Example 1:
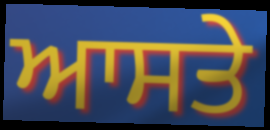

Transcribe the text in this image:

ਆਸਤੇ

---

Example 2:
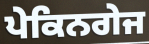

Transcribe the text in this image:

ਪੇਕਿਨਗੇਜ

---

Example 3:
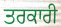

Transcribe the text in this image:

ਤਰਕਾਰੀ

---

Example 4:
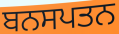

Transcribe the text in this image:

ਬਨਸਪਤਨ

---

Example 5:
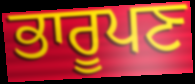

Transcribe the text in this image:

ਭਾਰੂਪਣ